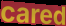
cared